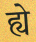
ह्ये